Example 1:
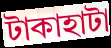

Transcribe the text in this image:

টাকাহাটা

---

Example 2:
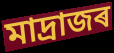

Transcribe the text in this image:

মাদ্ৰাজৰ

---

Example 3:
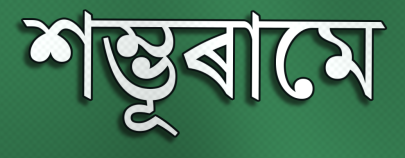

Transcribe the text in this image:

শম্ভূৰামে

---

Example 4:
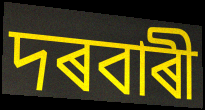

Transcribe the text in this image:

দৰবাৰী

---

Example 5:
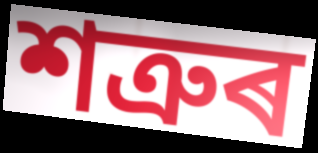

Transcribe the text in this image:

শত্ৰুৰ